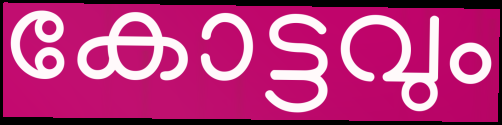
കോട്ടവും